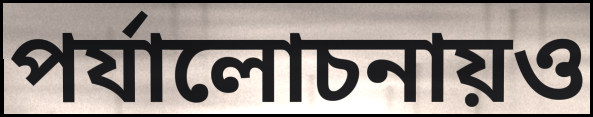
পর্যালোচনায়ও